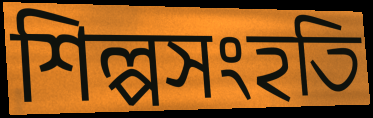
শিল্পসংহতি